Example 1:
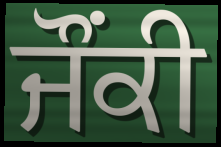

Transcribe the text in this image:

ਜੌਂਕੀ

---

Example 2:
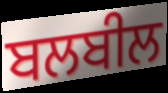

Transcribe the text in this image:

ਬਲਬੀਲ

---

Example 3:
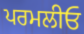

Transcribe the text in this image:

ਪਰਮਲੀਓ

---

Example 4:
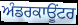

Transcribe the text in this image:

ਅੰਡਰਕਾਊਂਟਰ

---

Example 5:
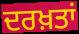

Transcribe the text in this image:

ਦਰਖ਼ਤਾਂ